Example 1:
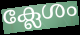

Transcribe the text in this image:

ക്ലേശം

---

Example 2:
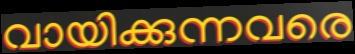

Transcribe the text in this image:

വായിക്കുന്നവരെ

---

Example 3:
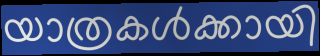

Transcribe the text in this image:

യാത്രകൾക്കായി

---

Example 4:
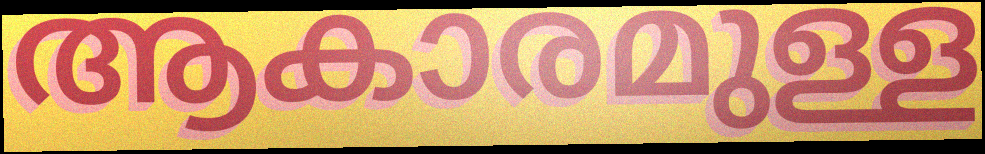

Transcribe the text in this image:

ആകാരമുള്ള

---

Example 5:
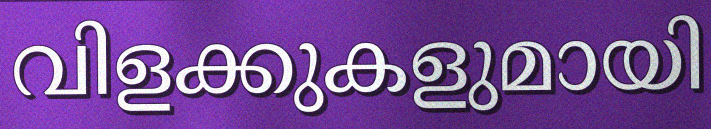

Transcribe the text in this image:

വിളക്കുകളുമായി